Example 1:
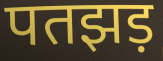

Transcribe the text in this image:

पतझड़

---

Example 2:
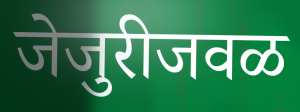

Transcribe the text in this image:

जेजुरीजवळ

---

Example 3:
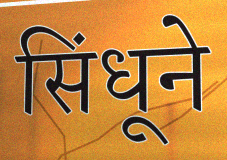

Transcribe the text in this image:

सिंधूने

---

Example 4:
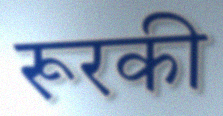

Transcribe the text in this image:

रूरकी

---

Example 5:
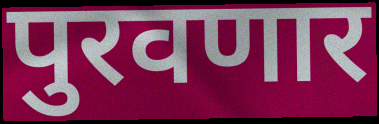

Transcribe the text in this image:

पुरवणार